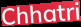
Chhatri